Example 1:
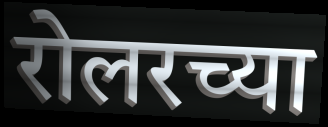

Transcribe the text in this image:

रोलरच्या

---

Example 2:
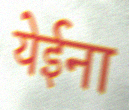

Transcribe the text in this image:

येईना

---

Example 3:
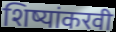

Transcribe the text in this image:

शिष्यांकरवी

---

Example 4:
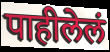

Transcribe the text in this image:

पाहीलेलं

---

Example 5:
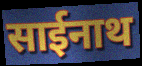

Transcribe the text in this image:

साईनाथ